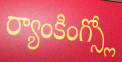
ర్యాంకింగ్స్లో